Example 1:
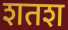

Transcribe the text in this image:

शतश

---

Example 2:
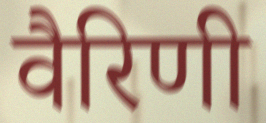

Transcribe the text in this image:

वैरिणी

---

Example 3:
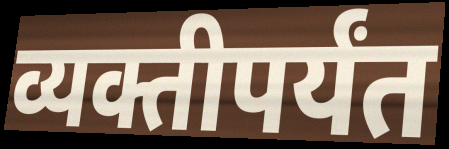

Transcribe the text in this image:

व्यक्तीपर्यंत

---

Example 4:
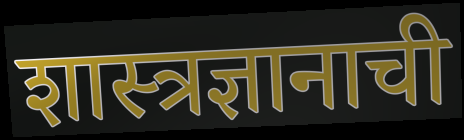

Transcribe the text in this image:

शास्त्रज्ञानाची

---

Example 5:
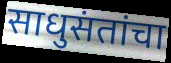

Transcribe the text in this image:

साधुसंतांचा